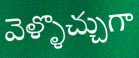
వెళ్ళొచ్చుగా